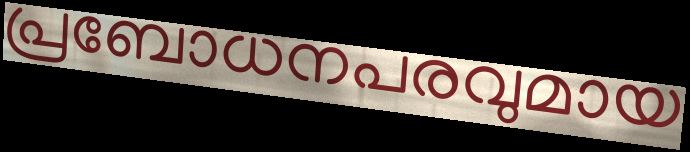
പ്രബോധനപരവുമായ